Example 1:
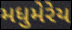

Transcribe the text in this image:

મધુમેરેય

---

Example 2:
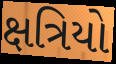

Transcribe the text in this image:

ક્ષત્રિયો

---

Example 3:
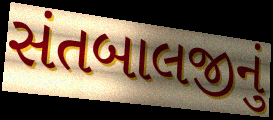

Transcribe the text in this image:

સંતબાલજીનું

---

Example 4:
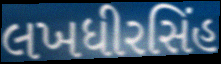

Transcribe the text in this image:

લખધીરસિંહ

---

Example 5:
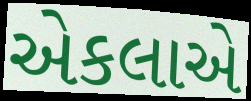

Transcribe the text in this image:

એકલાએ